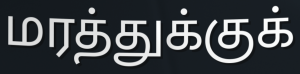
மரத்துக்குக்